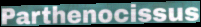
Parthenocissus